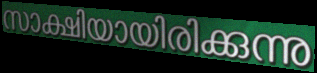
സാക്ഷിയായിരിക്കുന്നു